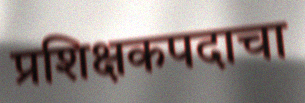
प्रशिक्षकपदाचा